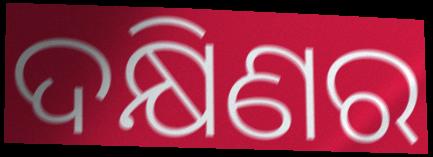
ଦକ୍ଷିଣର